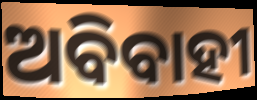
ଅବିବାହୀ